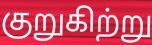
குறுகிற்று